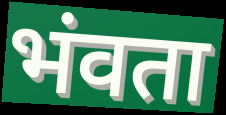
भंवता